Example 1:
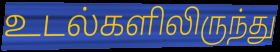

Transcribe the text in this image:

உடல்களிலிருந்து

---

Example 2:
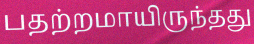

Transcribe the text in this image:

பதற்றமாயிருந்தது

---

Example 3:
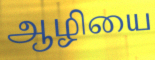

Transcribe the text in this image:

ஆழியை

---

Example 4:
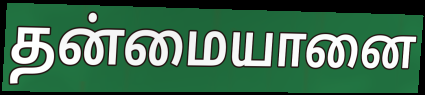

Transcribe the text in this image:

தன்மையானை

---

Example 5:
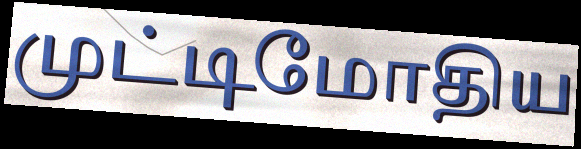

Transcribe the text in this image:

முட்டிமோதிய